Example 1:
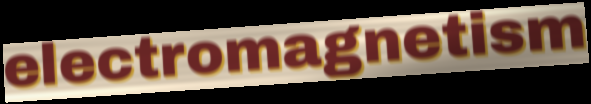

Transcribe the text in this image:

electromagnetism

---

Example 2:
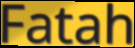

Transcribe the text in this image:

Fatah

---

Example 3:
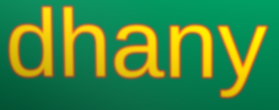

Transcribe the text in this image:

dhany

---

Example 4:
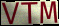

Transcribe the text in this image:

VTM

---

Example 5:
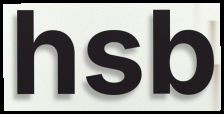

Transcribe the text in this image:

hsb